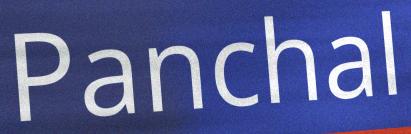
Panchal